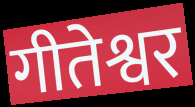
गीतेश्वर